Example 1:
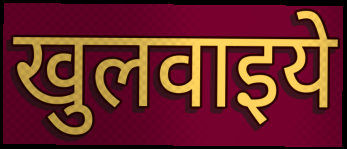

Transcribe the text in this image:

खुलवाइये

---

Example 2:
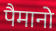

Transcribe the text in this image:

पैमानो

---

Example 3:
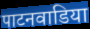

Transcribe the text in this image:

पाटनवाडिया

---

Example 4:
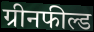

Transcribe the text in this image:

ग्रीनफील्‍ड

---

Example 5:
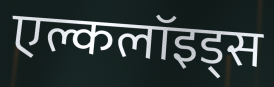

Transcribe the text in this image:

एल्कलॉइड्स